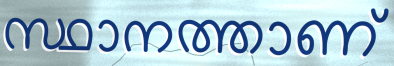
സ്ഥാനത്താണ്